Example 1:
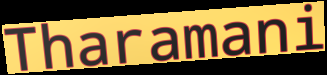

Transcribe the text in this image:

Tharamani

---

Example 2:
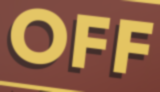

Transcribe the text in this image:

OFF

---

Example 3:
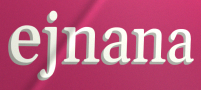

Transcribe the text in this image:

ejnana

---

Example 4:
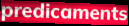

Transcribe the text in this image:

predicaments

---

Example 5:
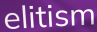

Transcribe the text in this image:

elitism